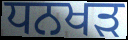
ਧਨਖਡ਼